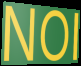
NOI